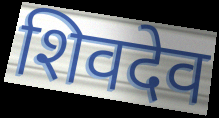
शिवदेव